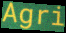
Agri